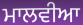
ਮਾਲਵੀਆ